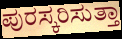
ಪುರಸ್ಕರಿಸುತ್ತಾ